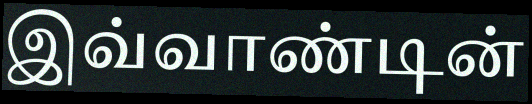
இவ்வாண்டின்